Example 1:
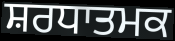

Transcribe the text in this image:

ਸ਼ਰਧਾਤਮਕ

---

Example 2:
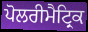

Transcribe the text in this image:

ਪੋਲਰੀਮੈਟ੍ਰਿਕ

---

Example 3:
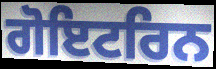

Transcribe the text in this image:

ਗੋਇਟਰਿਨ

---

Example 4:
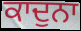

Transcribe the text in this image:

ਕਾਦੁਨਾ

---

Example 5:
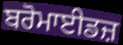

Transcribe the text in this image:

ਬਰੋਮਾਈਡਜ਼